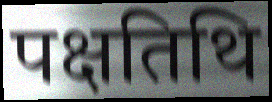
पक्षतिथि